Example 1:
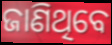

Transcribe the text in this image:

ଜାଣିଥିବେ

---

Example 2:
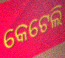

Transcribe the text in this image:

କେଟେଲି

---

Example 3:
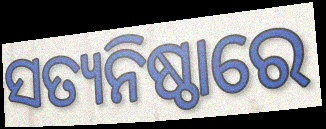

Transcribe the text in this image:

ସତ୍ୟନିଷ୍ଠାରେ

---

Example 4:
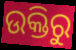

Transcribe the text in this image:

ଉକ୍ତିରୁ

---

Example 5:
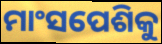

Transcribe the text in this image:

ମାଂସପେଶିକୁ